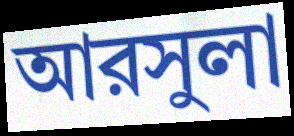
আরসুলা